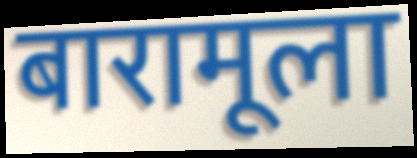
बारामूला